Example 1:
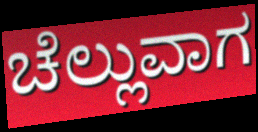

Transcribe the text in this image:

ಚೆಲ್ಲುವಾಗ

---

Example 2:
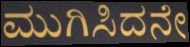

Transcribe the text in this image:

ಮುಗಿಸಿದನೇ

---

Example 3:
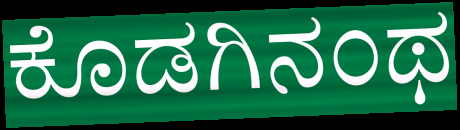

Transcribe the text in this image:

ಕೊಡಗಿನಂಥ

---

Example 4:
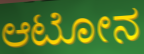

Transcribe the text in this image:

ಆಟೋನ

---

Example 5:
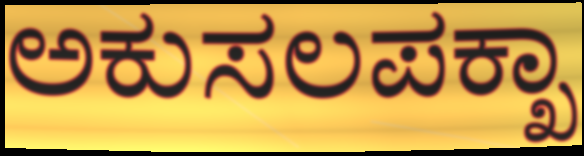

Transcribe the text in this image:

ಅಕುಸಲಪಕ್ಖಾ